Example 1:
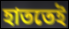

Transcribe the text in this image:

হাততেই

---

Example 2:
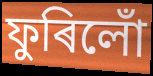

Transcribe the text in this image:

ফুৰিলোঁ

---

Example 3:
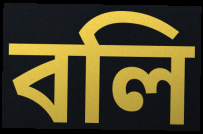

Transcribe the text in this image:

বলি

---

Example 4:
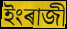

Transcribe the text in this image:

ইংৰাজী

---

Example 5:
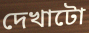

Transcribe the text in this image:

দেখাটো